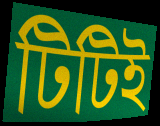
টিটিই